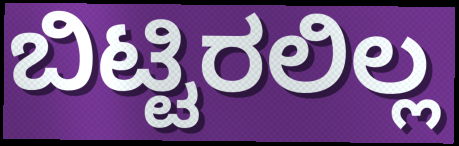
ಬಿಟ್ಟಿರಲಿಲ್ಲ